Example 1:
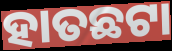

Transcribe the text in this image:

ହାତଛଟା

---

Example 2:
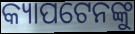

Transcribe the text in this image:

କ୍ୟାପଟେନଙ୍କୁ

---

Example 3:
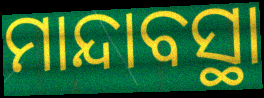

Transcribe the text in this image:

ମାନ୍ଦାବସ୍ଥା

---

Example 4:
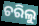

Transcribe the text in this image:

ଚରିଲୁ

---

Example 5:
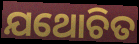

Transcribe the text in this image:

ଯଥୋଚିତ